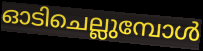
ഓടിചെല്ലുമ്പോൾ